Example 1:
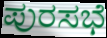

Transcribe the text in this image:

ಪುರಸಭೆ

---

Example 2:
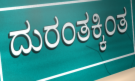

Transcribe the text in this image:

ದುರಂತಕ್ಕಿಂತ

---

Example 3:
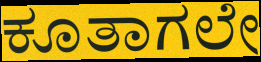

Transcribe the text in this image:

ಕೂತಾಗಲೇ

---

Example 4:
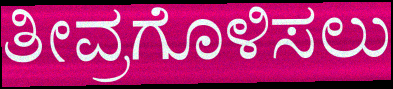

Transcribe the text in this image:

ತೀವ್ರಗೊಳಿಸಲು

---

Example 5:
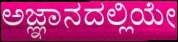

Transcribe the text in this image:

ಅಜ್ಞಾನದಲ್ಲಿಯೇ